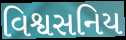
વિશ્વસનિય